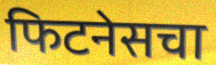
फिटनेसचा